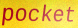
pocket